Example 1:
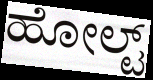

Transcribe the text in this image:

ಹೋಲ್ಟ್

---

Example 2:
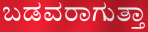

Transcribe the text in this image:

ಬಡವರಾಗುತ್ತಾ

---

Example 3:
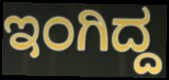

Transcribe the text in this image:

ಇಂಗಿದ್ದ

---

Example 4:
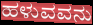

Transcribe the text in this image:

ಹಳುವವನು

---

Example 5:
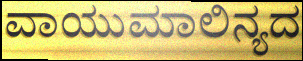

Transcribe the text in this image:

ವಾಯುಮಾಲಿನ್ಯದ